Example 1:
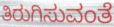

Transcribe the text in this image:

ತಿರುಗಿಸುವಂತೆ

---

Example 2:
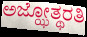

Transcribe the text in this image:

ಅಜ್ಝೋತ್ಥರತಿ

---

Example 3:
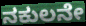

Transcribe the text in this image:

ನಕುಲನೇ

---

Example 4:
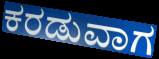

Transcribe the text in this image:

ಕರಡುವಾಗ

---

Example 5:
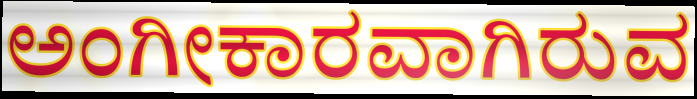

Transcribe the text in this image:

ಅಂಗೀಕಾರವಾಗಿರುವ